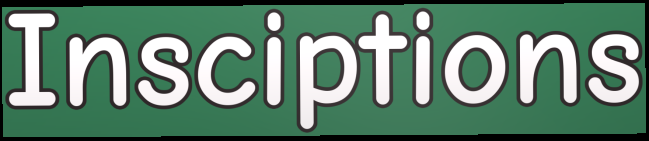
Insciptions